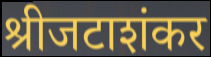
श्रीजटाशंकर